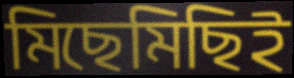
মিছেমিছিই